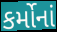
કર્મોનાં